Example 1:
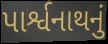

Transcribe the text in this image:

પાર્શ્વનાથનું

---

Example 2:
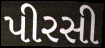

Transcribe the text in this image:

પીરસી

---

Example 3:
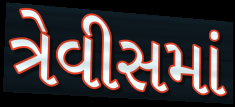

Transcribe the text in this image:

ત્રેવીસમાં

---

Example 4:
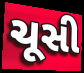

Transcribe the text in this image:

ચૂસી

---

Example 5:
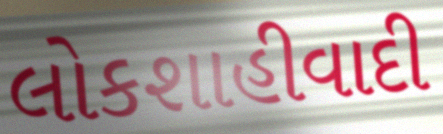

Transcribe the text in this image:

લોકશાહીવાદી